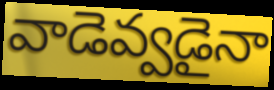
వాడెవ్వడైనా